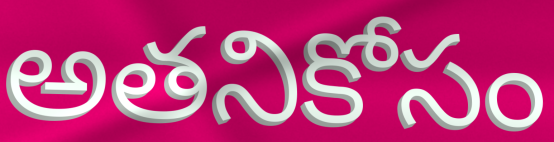
అతనికోసం